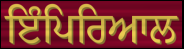
ਇੰਪਿਰਿਆਲ